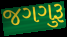
જગગુરૂ